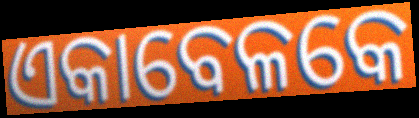
ଏକାବେଳକେ